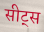
सीट्स